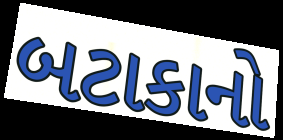
બટાકાનો